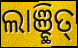
ଲାଞ୍ଛିତ୍